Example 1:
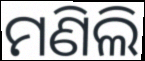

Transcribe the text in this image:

ମଣିଲି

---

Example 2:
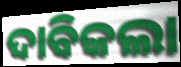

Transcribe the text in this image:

ଦାବିକଲା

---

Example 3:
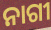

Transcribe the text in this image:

ନାଗୀ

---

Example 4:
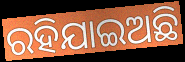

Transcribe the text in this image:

ରହିଯାଇଅଛି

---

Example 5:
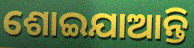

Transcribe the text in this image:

ଶୋଇଯାଆନ୍ତି